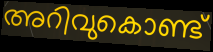
അറിവുകൊണ്ട്